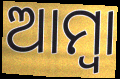
ଆମ୍ବା